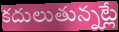
కదులుతున్నట్లే